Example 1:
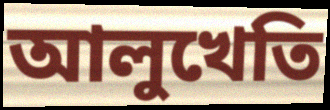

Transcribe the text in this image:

আলুখেতি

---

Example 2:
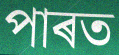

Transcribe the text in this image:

পাৰত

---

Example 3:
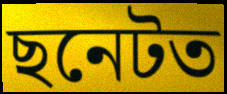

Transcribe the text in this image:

ছনেটত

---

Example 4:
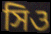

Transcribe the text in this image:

সিও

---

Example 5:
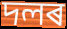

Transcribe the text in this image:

দলৰ